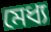
মেধ্য